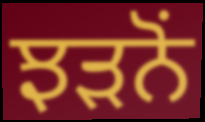
ਝੜਨੋਂ